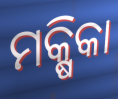
ମକ୍ଷିକା